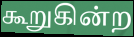
கூறுகின்ற